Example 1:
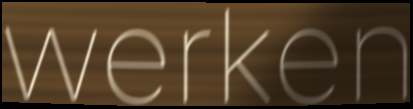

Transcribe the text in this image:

werken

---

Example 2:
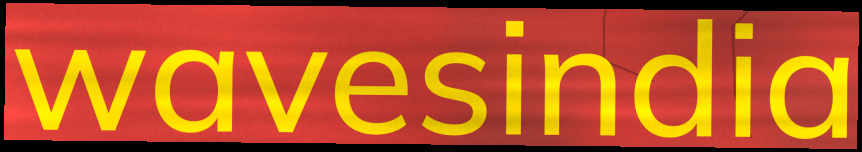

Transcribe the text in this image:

wavesindia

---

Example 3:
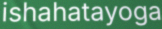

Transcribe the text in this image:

ishahatayoga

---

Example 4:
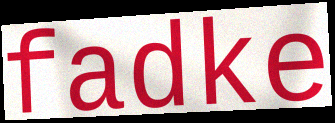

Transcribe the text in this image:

fadke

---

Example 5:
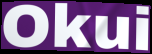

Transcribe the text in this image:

Okui